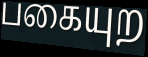
பகையுற